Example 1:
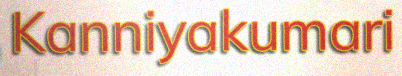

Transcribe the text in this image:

Kanniyakumari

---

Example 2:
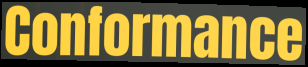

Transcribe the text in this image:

Conformance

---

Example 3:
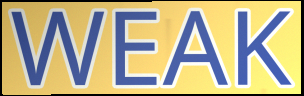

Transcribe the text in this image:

WEAK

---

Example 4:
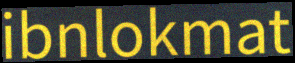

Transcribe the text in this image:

ibnlokmat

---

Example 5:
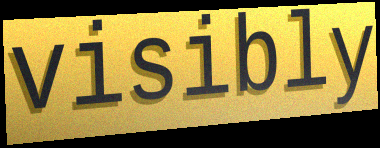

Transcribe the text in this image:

visibly